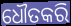
ଧୌତକରି